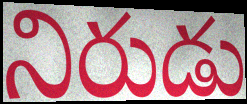
నిరుడు